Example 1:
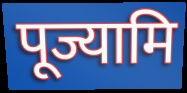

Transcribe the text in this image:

पूज्यामि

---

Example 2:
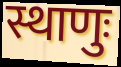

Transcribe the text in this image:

स्थाणुः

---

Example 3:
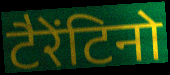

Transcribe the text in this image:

टैरेंटिनो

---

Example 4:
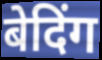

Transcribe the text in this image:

बेदिंग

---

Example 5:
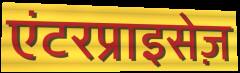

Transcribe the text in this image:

एंटरप्राइसेज़